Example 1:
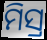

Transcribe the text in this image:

ମିସ୍ର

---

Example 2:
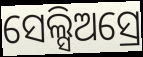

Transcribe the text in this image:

ସେଲ୍ସିଅସ୍ରେ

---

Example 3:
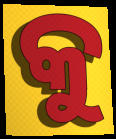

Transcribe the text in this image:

କୁ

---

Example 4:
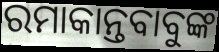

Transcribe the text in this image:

ରମାକାନ୍ତବାବୁଙ୍କ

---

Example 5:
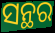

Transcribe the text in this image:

ସନ୍ଥର